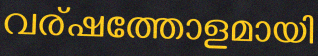
വര്ഷത്തോളമായി